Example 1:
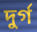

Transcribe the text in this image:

দুৰ্গ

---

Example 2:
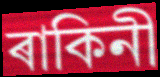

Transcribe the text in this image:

ৰাকিনী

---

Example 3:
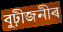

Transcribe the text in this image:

বুঢ়ীজনীৰ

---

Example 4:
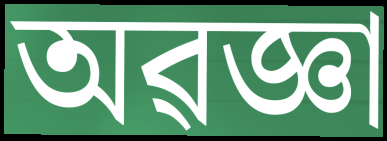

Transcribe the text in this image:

অৱজ্ঞা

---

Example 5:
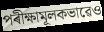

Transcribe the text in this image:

পৰীক্ষামূলকভাৱেও